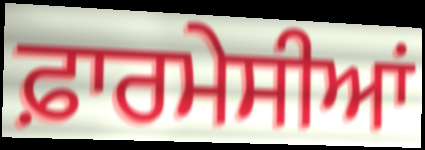
ਫ਼ਾਰਮੇਸੀਆਂ